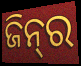
ଜିନ୍‍ର